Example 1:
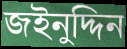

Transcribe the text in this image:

জইনুদ্দিন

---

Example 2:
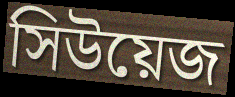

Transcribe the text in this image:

সিউয়েজ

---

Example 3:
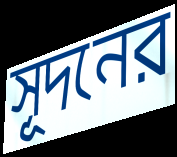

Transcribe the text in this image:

সূদনের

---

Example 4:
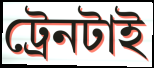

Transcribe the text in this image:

ট্রেনটাই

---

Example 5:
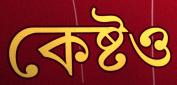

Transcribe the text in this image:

কেষ্টও